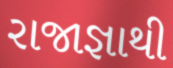
રાજાજ્ઞાથી